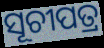
ସୂଚୀପତ୍ର